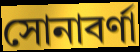
সোনাবর্ণা